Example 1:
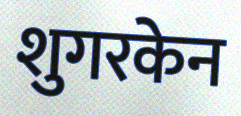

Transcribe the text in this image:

शुगरकेन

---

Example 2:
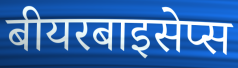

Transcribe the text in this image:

बीयरबाइसेप्स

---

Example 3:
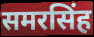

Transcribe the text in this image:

समरसिंह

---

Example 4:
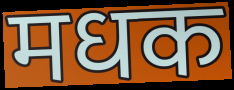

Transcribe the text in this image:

मधक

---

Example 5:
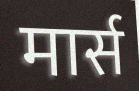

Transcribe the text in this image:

मार्स